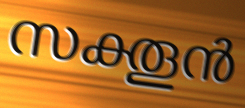
സക്തൂൻ